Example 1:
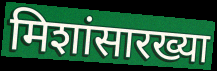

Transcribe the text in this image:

मिशांसारख्या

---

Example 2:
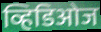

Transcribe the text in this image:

व्हिडिओज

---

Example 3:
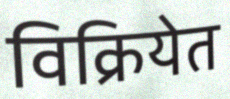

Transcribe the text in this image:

विक्रियेत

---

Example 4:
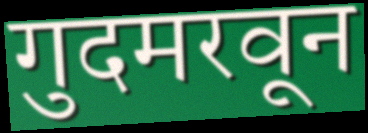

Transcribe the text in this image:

गुदमरवून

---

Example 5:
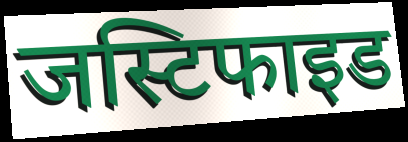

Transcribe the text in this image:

जस्टिफाइड